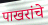
पाखरांचे